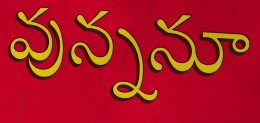
వున్ననూ